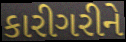
કારીગરીને